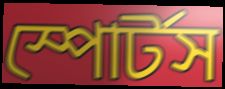
স্পোর্টস